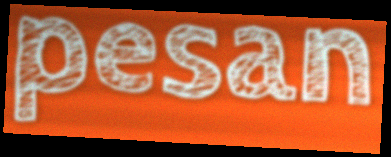
pesan